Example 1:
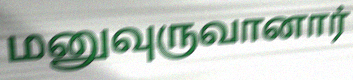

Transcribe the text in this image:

மனுவுருவானார்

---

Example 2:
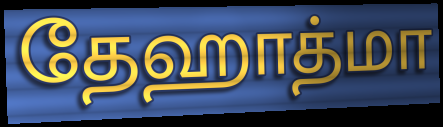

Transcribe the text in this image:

தேஹாத்மா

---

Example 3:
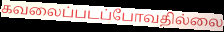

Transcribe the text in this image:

கவலைப்படப்போவதில்லை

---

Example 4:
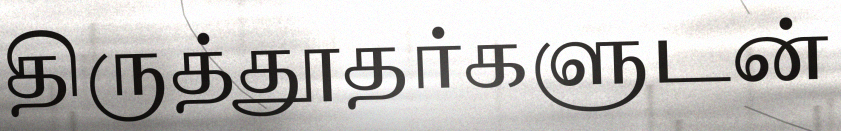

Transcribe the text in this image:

திருத்தூதர்களுடன்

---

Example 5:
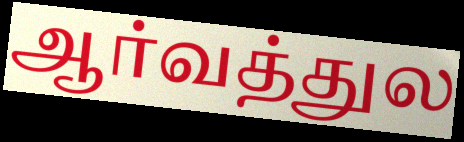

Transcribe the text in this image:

ஆர்வத்துல